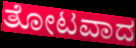
ತೋಟವಾದ